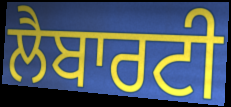
ਲੈਬਾਰਟੀ